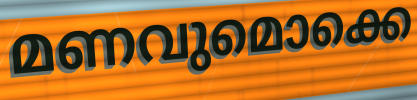
മണവുമൊക്കെ